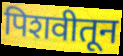
पिशवीतून